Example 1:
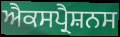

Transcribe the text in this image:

ਐਕਸਪ੍ਰੈਸ਼ਨਸ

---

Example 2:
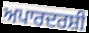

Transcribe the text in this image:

ਅਪਾਰਦਰਸ਼ੀ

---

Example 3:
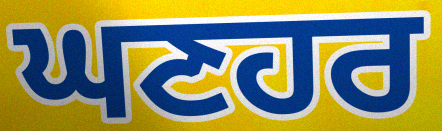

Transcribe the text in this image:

ਘਣਹਰ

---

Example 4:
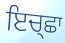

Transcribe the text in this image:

ਇਚ੍ਛਾ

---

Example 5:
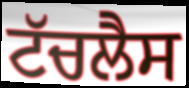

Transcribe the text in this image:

ਟੱਚਲੈਸ